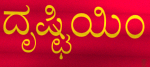
ದೃಷ್ಟಿಯಿಂ